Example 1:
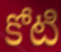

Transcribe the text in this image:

కోటి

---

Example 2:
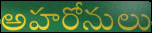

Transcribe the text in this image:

అహరోనులు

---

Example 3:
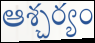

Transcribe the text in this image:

ఆశ్చర్యం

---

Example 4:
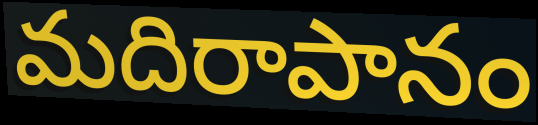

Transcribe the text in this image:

మదిరాపానం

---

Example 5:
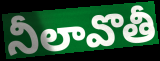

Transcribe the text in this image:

నీలావొతీ